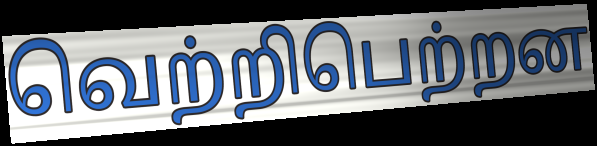
வெற்றிபெற்றன